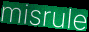
misrule